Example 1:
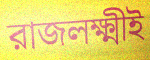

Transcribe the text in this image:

রাজলক্ষ্মীই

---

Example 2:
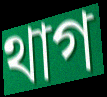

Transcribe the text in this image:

থাগ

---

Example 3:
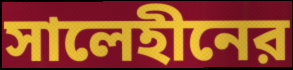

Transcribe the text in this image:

সালেহীনের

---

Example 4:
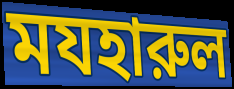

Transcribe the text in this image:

মযহারুল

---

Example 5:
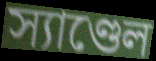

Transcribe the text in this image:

স্যাণ্ডেল